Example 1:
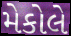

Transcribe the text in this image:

મેકોલે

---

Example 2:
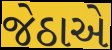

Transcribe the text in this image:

જેઠાએ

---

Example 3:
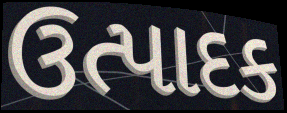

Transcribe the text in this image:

ઉત્પાદક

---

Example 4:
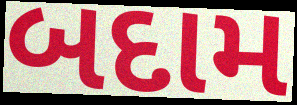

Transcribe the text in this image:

બદામ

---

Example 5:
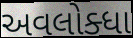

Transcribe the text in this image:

અવલોક્ધા